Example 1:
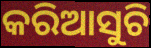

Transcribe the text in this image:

କରିଆସୁଚି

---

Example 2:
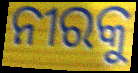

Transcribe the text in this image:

ନୀରକୁ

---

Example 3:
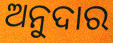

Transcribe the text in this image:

ଅନୁଦାର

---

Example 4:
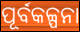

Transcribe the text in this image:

ପୂର୍ବକଳ୍ପନା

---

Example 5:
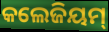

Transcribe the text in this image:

କଲେଜିୟମ୍